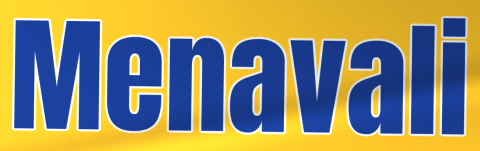
Menavali